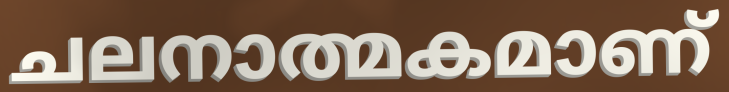
ചലനാത്മകമാണ്